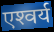
एश्‍वर्य